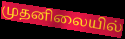
முதனிலையில்